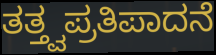
ತತ್ತ್ವಪ್ರತಿಪಾದನೆ